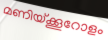
മണിയ്ക്കൂറോളം